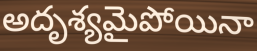
అదృశ్యమైపోయినా